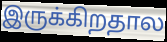
இருக்கிறதால